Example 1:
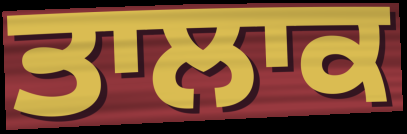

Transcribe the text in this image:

ਤਾਲਾਕ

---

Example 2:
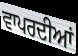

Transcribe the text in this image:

ਵਾਪਰਦੀਆਂ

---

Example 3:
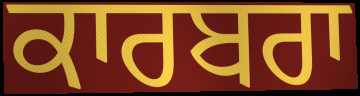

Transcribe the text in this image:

ਕਾਰਬਰਾ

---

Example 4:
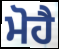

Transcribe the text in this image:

ਮੋਹੈ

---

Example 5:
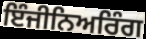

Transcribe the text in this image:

ਇੰਜੀਨਿਅਰਿੰਗ